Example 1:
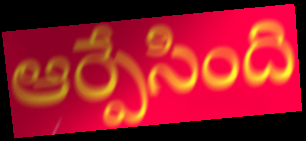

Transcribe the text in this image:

ఆర్పేసింది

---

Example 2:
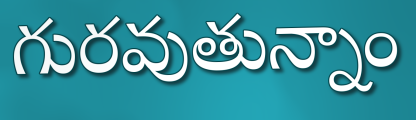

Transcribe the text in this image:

గురవుతున్నాం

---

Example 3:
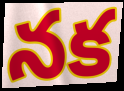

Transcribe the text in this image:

నక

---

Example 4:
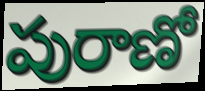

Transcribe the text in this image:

పురాణో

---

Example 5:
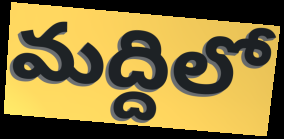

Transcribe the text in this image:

మద్దిలో